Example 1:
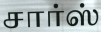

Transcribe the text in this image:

சார்ஸ்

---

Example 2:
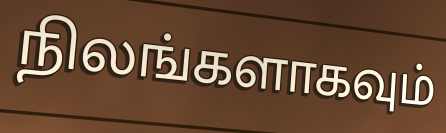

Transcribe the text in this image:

நிலங்களாகவும்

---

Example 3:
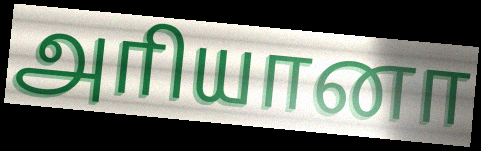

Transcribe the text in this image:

அரியானா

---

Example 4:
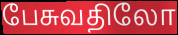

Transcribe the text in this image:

பேசுவதிலோ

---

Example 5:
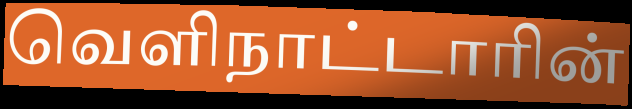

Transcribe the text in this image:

வெளிநாட்டாரின்